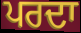
ਪਰਦਾ